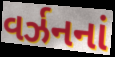
વર્ઝનનાં